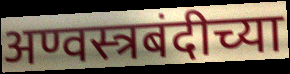
अण्वस्त्रबंदीच्या